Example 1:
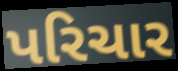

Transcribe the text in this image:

પરિચાર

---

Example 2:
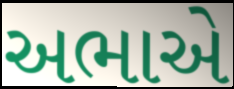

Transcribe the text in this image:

અભાએ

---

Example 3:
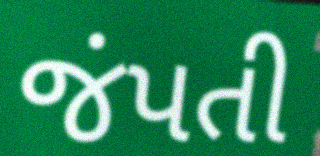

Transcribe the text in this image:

જંપતી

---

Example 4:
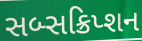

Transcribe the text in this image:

સબ્સક્રિપ્શન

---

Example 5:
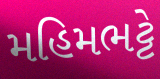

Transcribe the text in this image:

મહિમભટ્ટે